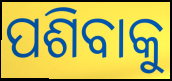
ପଶିବାକୁ